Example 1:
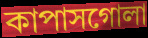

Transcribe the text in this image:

কাপাসগোলা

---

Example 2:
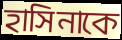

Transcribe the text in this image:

হাসিনাকে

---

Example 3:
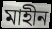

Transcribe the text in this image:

মাহীন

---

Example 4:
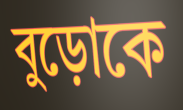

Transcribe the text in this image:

বুড়োকে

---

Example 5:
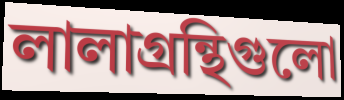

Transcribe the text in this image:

লালাগ্রন্থিগুলো